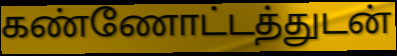
கண்ணோட்டத்துடன்